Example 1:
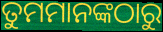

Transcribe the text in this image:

ତୁମମାନଙ୍କଠାରୁ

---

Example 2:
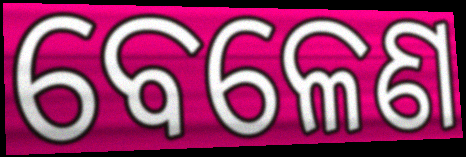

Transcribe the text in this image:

ବେଳେଣ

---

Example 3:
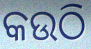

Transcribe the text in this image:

କଉଠି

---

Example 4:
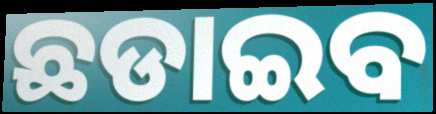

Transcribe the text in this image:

ଛଡାଇବ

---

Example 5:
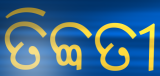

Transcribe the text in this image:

ତିବ୍ବତୀ